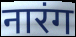
नारंग